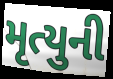
મૃત્યુની